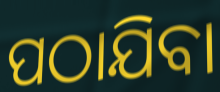
ପଠାଯିବା